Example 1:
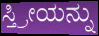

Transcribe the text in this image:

ಸ್ತ್ರೀಯನ್ನು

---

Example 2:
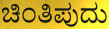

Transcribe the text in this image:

ಚಿಂತಿಪುದು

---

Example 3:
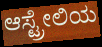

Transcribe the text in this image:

ಆಸ್ಟ್ರೇಲಿಯ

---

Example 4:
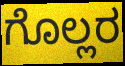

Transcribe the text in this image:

ಗೊಲ್ಲರ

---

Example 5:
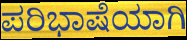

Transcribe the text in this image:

ಪರಿಭಾಷೆಯಾಗಿ